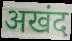
अखंद